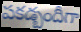
పకడ్బందీగా